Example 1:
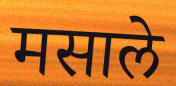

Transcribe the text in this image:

मसाले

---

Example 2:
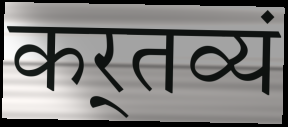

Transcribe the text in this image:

कर्तव्यं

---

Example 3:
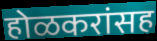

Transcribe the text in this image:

होळकरांसह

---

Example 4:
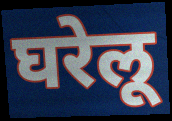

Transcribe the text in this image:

घरेलू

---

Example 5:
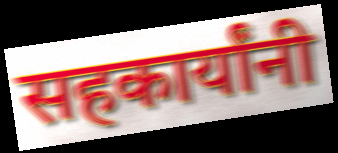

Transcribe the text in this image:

सहकार्यांनी